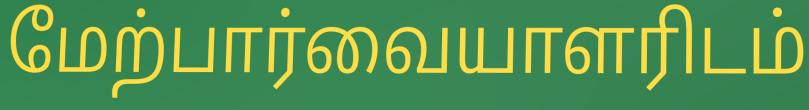
மேற்பார்வையாளரிடம்